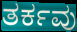
ತರ್ಕವು